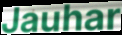
Jauhar